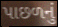
પાછળનું